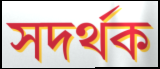
সদর্থক